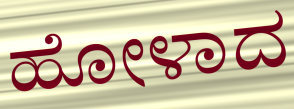
ಹೋಳಾದ